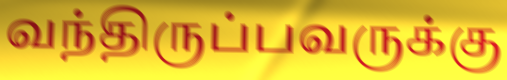
வந்திருப்பவருக்கு